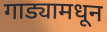
गाड्यामधून